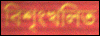
বিশৃংখলিত